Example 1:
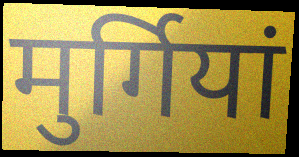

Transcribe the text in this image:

मुर्गियां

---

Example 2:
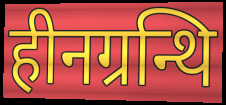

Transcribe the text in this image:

हीनग्रन्थि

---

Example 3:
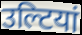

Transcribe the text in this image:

उल्‍टियां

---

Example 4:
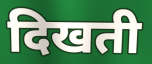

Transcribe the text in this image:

दिखती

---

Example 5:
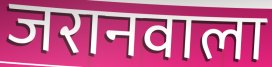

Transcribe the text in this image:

जरानवाला